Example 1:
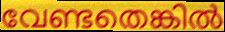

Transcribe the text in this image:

വേണ്ടതെങ്കിൽ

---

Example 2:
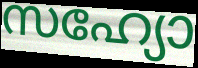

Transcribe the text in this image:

സഹ്യോ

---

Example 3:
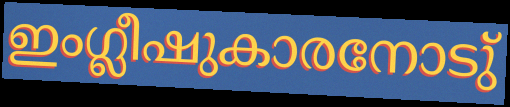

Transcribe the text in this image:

ഇംഗ്ലീഷുകാരനോടു്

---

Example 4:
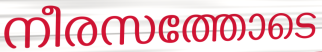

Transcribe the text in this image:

നീരസത്തോടെ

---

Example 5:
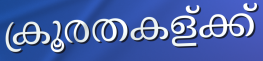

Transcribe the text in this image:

ക്രൂരതകള്ക്ക്